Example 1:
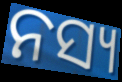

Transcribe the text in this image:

ନସ୍ୟ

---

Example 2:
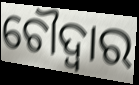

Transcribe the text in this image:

ଚୌଦ୍ଵାର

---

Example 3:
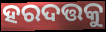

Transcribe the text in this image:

ହରଦତ୍ତକୁ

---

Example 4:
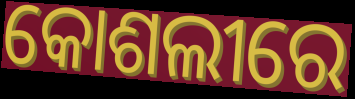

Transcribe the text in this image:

କୋଶଲୀରେ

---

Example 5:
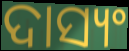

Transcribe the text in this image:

ଦାସ୍ୟଂ